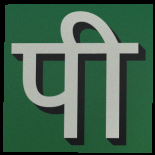
पी